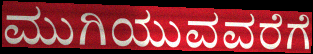
ಮುಗಿಯುವವರೆಗೆ